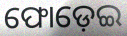
ଫୋଡ଼େଇ